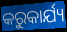
କରୁକାର୍ଯ୍ୟ